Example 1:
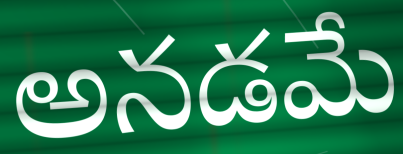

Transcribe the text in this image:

అనడమే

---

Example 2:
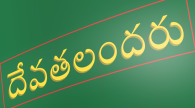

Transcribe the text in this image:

దేవతలందరు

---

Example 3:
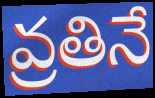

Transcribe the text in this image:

వ్రతినే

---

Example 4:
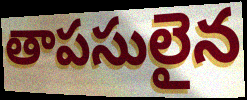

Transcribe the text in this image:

తాపసులైన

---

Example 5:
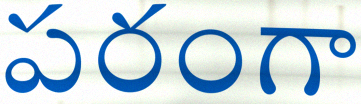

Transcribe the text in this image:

పరంగా